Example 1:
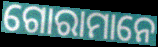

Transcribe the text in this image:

ଗୋରାମାନେ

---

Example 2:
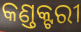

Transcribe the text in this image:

କଣ୍ଡକ୍ଟରୀ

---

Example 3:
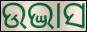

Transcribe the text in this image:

ଉଦ୍ଭାସ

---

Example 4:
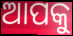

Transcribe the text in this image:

ଆପକୁ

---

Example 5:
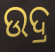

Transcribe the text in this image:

ଉଦ୍ର